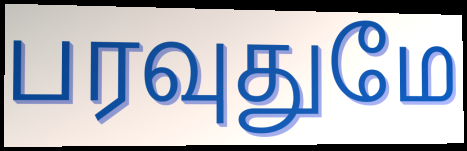
பரவுதுமே